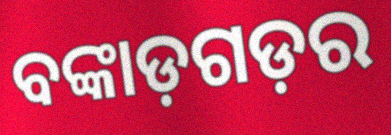
ବଙ୍କାଡ଼ଗଡ଼ର